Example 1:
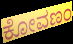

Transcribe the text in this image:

ಕೋವಣಂ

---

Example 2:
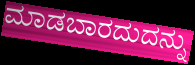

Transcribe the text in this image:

ಮಾಡಬಾರದುದನ್ನು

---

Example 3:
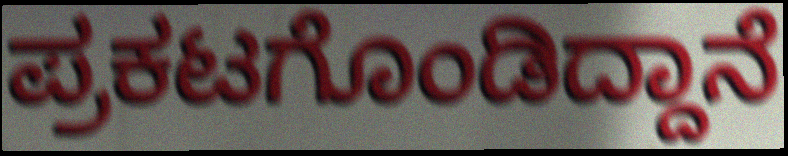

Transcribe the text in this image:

ಪ್ರಕಟಗೊಂಡಿದ್ದಾನೆ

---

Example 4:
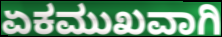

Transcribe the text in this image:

ಏಕಮುಖವಾಗಿ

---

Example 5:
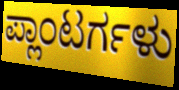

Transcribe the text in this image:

ಪ್ಲಾಂಟರ್ಗಳು